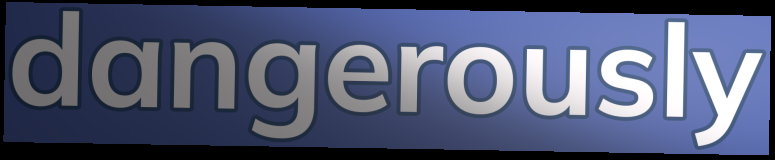
dangerously